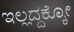
ಇಲ್ಲದ್ದಕ್ಕೋ